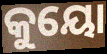
କୁୟୋ